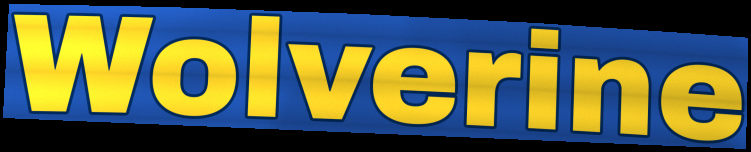
Wolverine